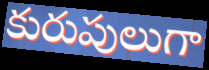
కురుపులుగా